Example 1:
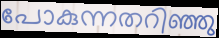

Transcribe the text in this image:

പോകുന്നതറിഞ്ഞു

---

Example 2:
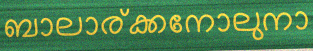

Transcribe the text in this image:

ബാലാര്ക്കനോലുനാ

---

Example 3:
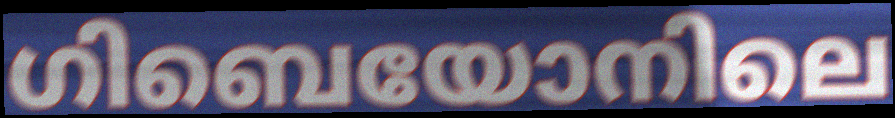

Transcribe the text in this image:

ഗിബെയോനിലെ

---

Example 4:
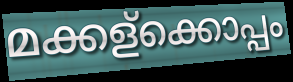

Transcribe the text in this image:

മക്കള്ക്കൊപ്പം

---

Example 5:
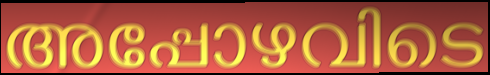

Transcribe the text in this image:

അപ്പോഴവിടെ